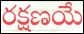
రక్షణయే